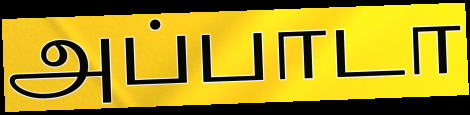
அப்பாடா